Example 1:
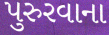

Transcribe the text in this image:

પુરુરવાના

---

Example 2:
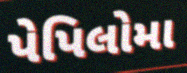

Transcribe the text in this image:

પેપિલોમા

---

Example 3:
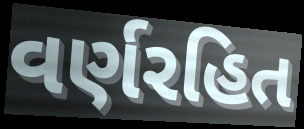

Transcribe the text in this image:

વર્ણરહિત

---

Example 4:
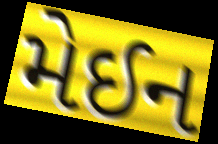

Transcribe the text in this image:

મેઈન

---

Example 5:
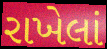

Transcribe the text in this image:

રાખેલાં